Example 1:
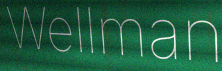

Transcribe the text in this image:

Wellman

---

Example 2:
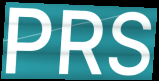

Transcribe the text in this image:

PRS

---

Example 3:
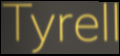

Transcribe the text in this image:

Tyrell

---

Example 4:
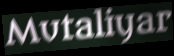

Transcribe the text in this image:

Mutaliyar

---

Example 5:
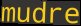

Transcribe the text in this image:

mudre